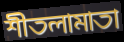
শীতলামাতা